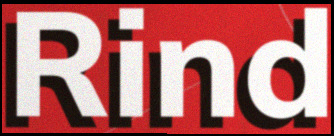
Rind